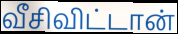
வீசிவிட்டான்